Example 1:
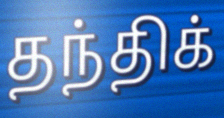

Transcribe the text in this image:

தந்திக்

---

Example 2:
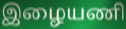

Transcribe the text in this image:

இழையணி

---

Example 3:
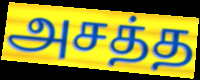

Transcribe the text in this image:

அசத்த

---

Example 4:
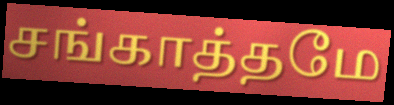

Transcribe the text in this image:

சங்காத்தமே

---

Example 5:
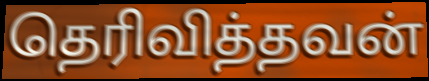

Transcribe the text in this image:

தெரிவித்தவன்